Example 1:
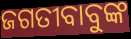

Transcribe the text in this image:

ଜଗତୀବାବୁଙ୍କ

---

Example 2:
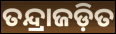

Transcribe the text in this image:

ତନ୍ଦ୍ରାଜଡ଼ିତ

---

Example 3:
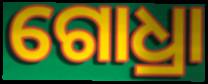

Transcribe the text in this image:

ଗୋଧ୍ରା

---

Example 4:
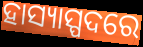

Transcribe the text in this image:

ହାସ୍ୟାସ୍ପଦରେ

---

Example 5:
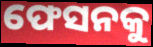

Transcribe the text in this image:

ଫେସନକୁ